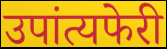
उपांत्यफेरी